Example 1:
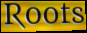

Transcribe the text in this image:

Roots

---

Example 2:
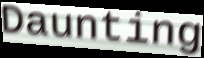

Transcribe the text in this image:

Daunting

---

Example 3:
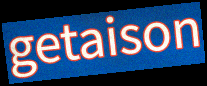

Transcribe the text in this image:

getaison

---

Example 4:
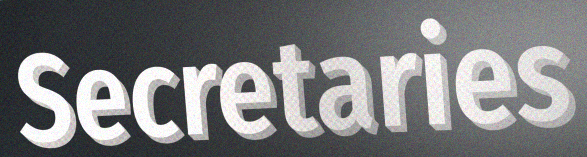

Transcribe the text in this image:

Secretaries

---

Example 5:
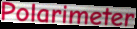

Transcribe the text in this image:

Polarimeter